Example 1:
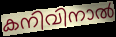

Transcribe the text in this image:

കനിവിനാൽ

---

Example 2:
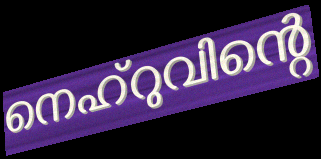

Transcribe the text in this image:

നെഹ്റുവിന്റെ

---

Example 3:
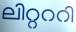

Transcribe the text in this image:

ലിറ്റററി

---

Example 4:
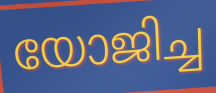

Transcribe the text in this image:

യോജിച്ച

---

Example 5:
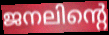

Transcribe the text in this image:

ജനലിന്റെ